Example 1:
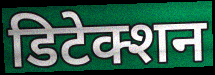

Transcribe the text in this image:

डिटेक्शन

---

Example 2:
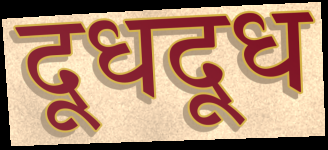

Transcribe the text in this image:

दूधदूध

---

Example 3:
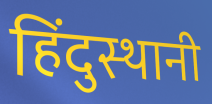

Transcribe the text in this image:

हिंदुस्थानी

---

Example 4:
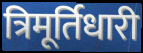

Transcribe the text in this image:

त्रिमूर्तिधारी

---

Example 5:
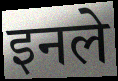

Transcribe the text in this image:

इनले